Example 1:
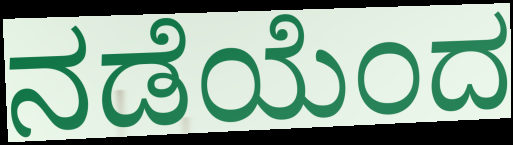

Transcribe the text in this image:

ನಡೆಯೆಂದ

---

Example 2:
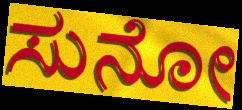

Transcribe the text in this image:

ಸುನೋ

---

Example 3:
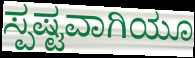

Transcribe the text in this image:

ಸ್ಪಷ್ಟವಾಗಿಯೂ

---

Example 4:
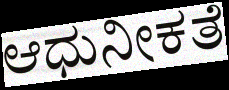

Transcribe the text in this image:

ಆಧುನೀಕತೆ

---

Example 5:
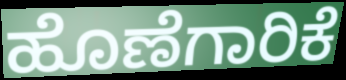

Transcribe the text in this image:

ಹೊಣೆಗಾರಿಕೆ